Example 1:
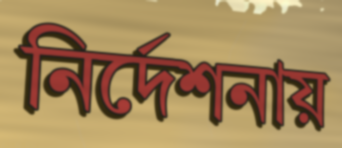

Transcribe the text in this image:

নির্দেশনায়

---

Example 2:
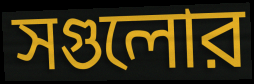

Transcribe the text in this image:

সগুলোর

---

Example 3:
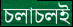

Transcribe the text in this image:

চলাচলই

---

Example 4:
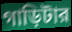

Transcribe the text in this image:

গাড়িটার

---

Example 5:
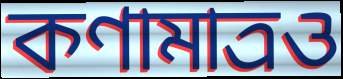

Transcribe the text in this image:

কণামাত্রও